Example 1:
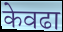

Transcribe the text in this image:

केवढा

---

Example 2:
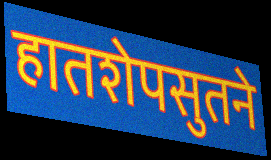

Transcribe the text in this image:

हातशेपसुतने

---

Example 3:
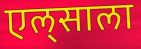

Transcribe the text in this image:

एल्साला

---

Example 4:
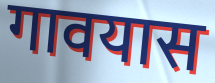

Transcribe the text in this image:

गावयास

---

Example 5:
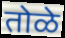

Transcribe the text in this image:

तोळे